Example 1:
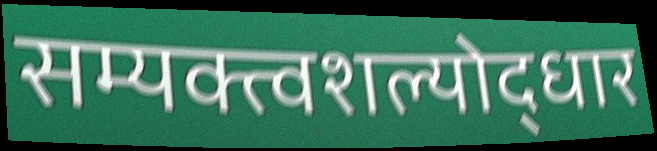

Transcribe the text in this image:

सम्यक्त्वशल्योद्धार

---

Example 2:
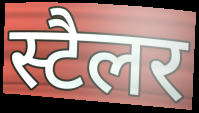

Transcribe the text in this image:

स्टैलर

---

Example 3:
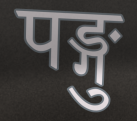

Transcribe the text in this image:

पङ्गु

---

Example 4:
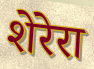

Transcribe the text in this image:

शेरेरा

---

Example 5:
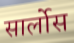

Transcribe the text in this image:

सार्लोस